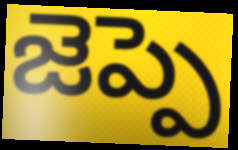
జెప్పె